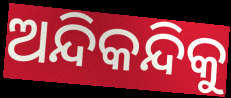
ଅନ୍ଦିକନ୍ଦିକୁ